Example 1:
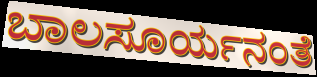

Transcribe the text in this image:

ಬಾಲಸೂರ್ಯನಂತೆ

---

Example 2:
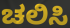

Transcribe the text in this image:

ಚಲಿಸಿ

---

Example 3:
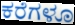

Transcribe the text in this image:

ಕರೆಗಳೂ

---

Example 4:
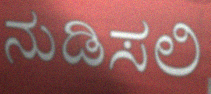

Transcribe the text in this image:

ನುಡಿಸಲಿ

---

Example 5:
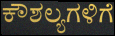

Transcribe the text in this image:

ಕೌಶಲ್ಯಗಳಿಗೆ